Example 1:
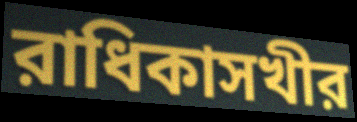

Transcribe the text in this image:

রাধিকাসখীর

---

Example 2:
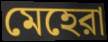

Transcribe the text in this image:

মেহেরা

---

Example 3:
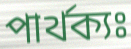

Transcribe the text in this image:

পার্থক্যঃ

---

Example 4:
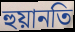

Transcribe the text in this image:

হুয়ানতি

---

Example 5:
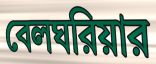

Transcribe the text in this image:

বেলঘরিয়ার